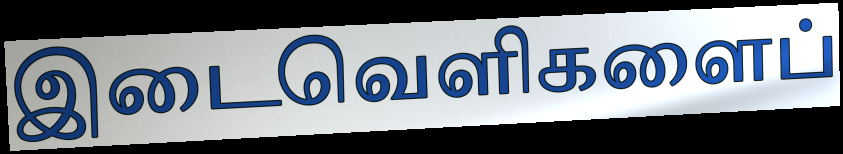
இடைவெளிகளைப்